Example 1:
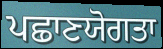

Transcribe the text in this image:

ਪਛਾਣਯੋਗਤਾ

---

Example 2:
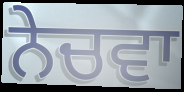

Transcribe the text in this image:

ਨੇਚਵਾ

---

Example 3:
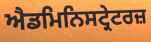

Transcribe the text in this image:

ਐਡਮਿਨਿਸਟ੍ਰੇਟਰਜ਼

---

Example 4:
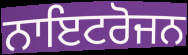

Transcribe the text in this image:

ਨਾਇਟਰੋਜਨ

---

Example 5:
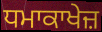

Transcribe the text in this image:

ਧਮਾਕਾਖੇਜ਼